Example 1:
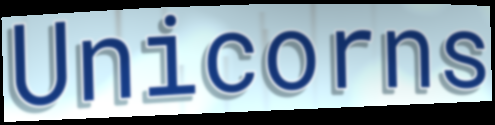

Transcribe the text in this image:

Unicorns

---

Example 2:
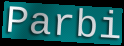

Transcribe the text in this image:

Parbi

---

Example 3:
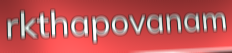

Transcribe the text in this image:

rkthapovanam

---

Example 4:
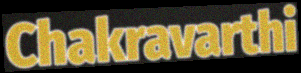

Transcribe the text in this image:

Chakravarthi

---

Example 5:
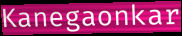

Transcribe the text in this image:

Kanegaonkar